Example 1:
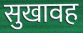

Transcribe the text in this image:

सुखावह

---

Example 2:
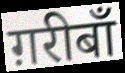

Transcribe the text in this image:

ग़रीबाँ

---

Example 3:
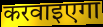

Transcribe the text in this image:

करवाइएगा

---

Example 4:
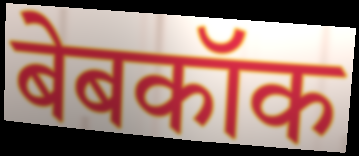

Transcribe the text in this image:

बेबकॉक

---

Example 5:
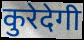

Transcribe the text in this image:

कुरेदेगी